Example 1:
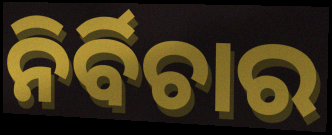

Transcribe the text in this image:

ନିର୍ବିଚାର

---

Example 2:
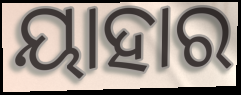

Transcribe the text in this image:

ୟାହାର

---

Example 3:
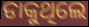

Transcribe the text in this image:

ଡାକୁଥିଲେ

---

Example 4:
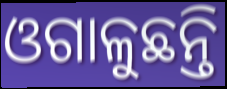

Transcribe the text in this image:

ଓଗାଳୁଛନ୍ତି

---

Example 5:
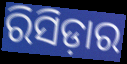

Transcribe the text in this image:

ରିସିଡ଼ାର